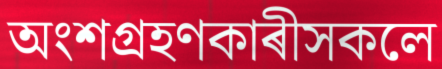
অংশগ্ৰহণকাৰীসকলে